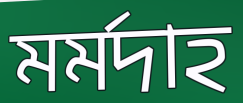
মর্মদাহ